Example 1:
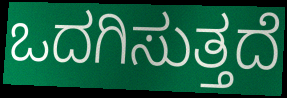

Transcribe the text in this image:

ಒದಗಿಸುತ್ತದೆ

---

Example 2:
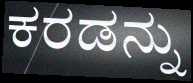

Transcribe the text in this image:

ಕರಡನ್ನು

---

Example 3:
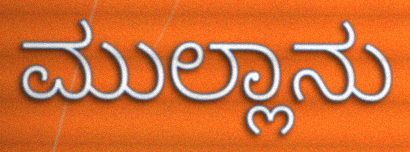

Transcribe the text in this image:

ಮುಲ್ಲಾನು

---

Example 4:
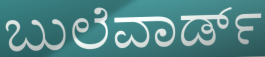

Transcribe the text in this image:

ಬುಲೆವಾರ್ಡ್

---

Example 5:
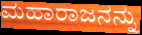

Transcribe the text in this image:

ಮಹಾರಾಜನನ್ನು